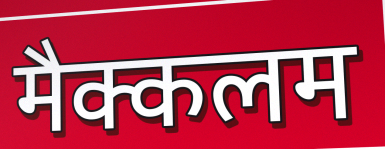
मैक्कलम